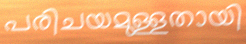
പരിചയമുള്ളതായി